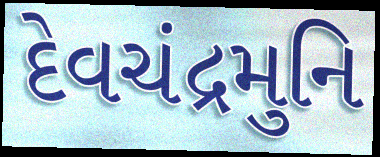
દેવચંદ્રમુનિ